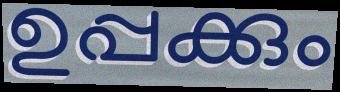
ഉപ്പക്കും